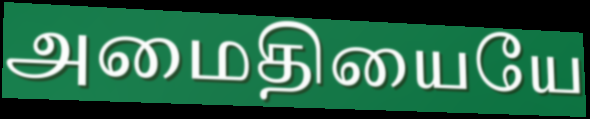
அமைதியையே